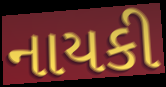
નાયકી